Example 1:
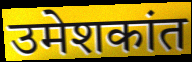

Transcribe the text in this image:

उमेशकांत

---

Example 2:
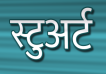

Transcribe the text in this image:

स्टुअर्ट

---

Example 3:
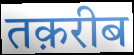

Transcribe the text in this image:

तक़रीब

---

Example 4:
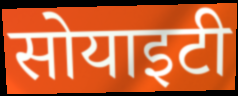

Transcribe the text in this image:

सोयाइटी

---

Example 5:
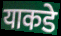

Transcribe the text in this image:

याकडे